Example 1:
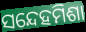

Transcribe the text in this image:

ସନ୍ଦେହମିଶା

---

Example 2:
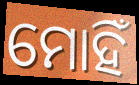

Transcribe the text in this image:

ମୋହିଁ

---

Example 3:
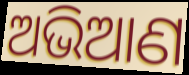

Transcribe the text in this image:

ଅଭିଆଣ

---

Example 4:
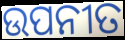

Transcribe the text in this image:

ଉପନୀତ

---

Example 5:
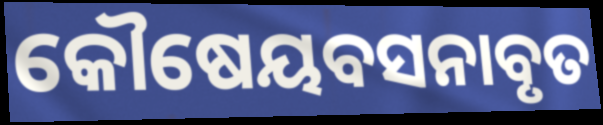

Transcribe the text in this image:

କୌଷେୟବସନାବୃତ